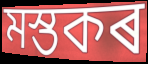
মস্তকৰ